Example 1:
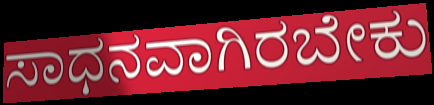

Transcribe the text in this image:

ಸಾಧನವಾಗಿರಬೇಕು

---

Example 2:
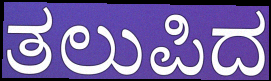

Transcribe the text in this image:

ತಲುಪಿದ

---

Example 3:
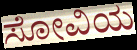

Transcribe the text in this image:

ಸೋವಿಯ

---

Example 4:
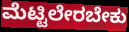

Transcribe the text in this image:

ಮೆಟ್ಟಿಲೇರಬೇಕು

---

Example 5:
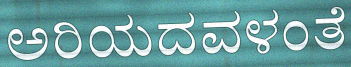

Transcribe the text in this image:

ಅರಿಯದವಳಂತೆ